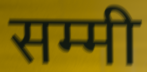
सम्मी